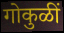
गोकुळीं